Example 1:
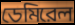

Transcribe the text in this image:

ডেমিরেল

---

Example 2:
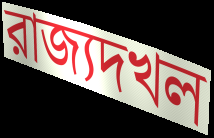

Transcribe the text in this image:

রাজ্যদখল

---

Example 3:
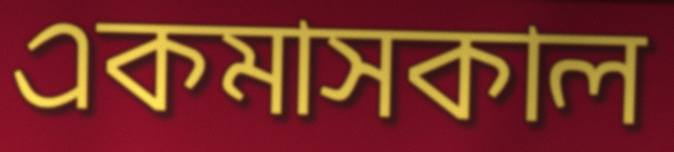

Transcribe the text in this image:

একমাসকাল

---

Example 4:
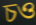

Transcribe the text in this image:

চও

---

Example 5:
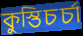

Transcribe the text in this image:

কুস্তিচর্চা